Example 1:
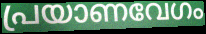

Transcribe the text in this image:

പ്രയാണവേഗം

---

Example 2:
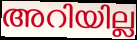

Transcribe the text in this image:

അറിയില്ല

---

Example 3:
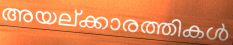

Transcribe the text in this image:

അയല്ക്കാരത്തികൾ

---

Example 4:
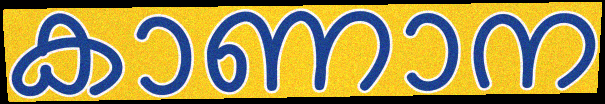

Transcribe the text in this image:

കാണാന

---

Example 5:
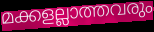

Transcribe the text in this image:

മക്കളല്ലാത്തവരും